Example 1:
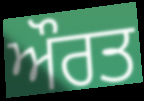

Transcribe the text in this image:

ਔਰਤ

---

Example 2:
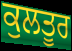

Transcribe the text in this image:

ਕੁਲਤੂਰ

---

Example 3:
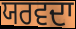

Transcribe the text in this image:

ਯਰਵਦਾ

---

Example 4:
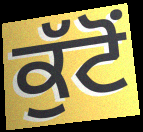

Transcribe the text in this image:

ਕੁੱਟੋਂ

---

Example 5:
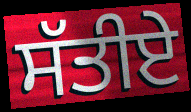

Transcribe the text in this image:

ਸੱਤੀਏ